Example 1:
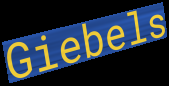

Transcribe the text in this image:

Giebels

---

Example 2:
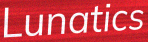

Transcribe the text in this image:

Lunatics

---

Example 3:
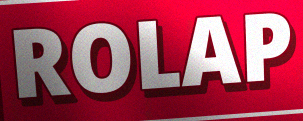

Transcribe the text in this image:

ROLAP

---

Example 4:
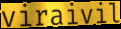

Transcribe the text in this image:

viraivil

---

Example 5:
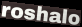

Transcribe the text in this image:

roshalo